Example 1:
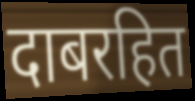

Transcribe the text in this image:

दाबरहित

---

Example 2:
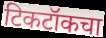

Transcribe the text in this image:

टिकटॉकचा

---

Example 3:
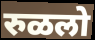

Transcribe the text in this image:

रुळलो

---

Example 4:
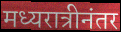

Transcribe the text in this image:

मध्यरात्रीनंतर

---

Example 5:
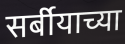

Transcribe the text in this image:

सर्बीयाच्या